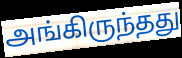
அங்கிருந்தது